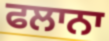
ਫਲਾਨਾ